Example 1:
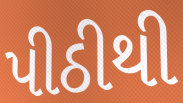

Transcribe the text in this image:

પીઠીથી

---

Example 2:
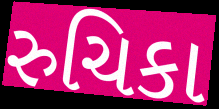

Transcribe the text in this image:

રુચિકા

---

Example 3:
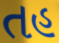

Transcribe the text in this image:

તહ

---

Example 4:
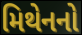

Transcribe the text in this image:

મિથેનનો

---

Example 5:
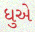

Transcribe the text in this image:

ધુએ